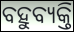
ବହୁବ୍ୟକ୍ତି